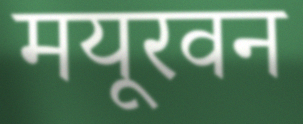
मयूरवन